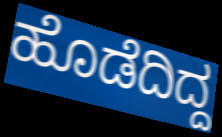
ಹೊಡೆದಿದ್ದ